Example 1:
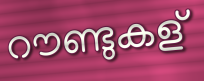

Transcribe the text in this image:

റൗണ്ടുകള്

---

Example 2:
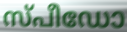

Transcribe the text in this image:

സ്പീഡോ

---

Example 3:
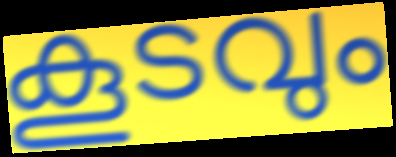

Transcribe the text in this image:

കൂടവും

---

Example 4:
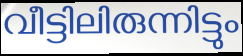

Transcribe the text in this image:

വീട്ടിലിരുന്നിട്ടും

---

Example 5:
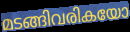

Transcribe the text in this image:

മടങ്ങിവരികയോ